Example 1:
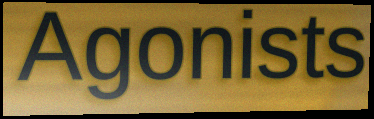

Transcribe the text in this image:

Agonists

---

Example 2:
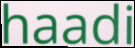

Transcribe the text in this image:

haadi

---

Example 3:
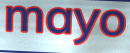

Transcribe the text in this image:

mayo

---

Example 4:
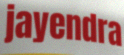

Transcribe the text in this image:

jayendra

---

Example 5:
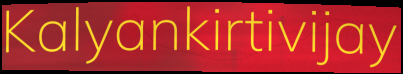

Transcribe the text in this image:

Kalyankirtivijay